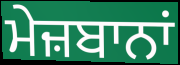
ਮੇਜ਼ਬਾਨਾਂ